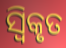
ସ୍ୱିକୃତ